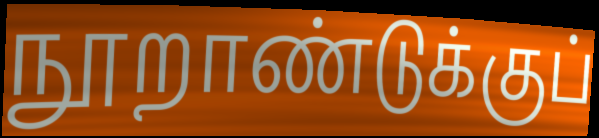
நூறாண்டுக்குப்